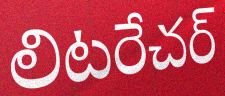
లిటరేచర్